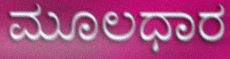
ಮೂಲಧಾರ